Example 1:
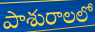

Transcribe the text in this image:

పాశురాలలో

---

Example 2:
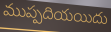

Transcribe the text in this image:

ముప్పదియయిదు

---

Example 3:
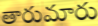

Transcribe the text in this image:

తారుమారు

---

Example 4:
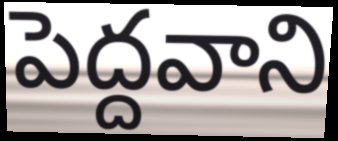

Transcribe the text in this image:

పెద్దవాని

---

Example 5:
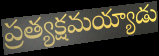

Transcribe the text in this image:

ప్రత్యక్షమయ్యాడు